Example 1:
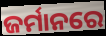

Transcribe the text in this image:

ଜର୍ମାନରେ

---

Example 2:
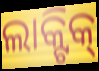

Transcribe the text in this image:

ଲାକ୍ଟିକ୍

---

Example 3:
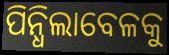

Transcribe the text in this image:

ପିନ୍ଧିଲାବେଳକୁ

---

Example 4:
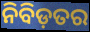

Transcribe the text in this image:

ନିବିଡ଼ତର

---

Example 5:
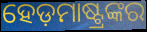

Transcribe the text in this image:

ହେଡ଼ମାଷ୍ଟ୍ରଙ୍କର